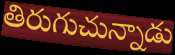
తిరుగుచున్నాడు